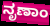
ನೃಣಾಂ